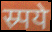
स्र्पये